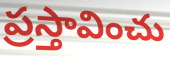
ప్రస్తావించు